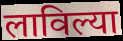
लाविल्या